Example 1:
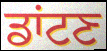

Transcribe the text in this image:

ਡਾਂਟਣ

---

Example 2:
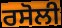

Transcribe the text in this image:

ਰਸੋਲੀ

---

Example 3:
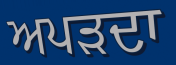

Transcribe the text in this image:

ਅਪੜਦਾ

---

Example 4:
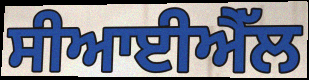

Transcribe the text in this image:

ਸੀਆਈਐੱਲ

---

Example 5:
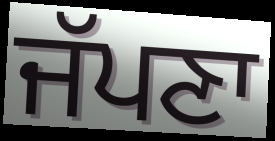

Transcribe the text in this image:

ਜੱਪਣਾ